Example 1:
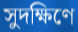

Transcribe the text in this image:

সুদক্ষিণে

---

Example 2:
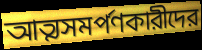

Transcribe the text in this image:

আত্মসমর্পণকারীদের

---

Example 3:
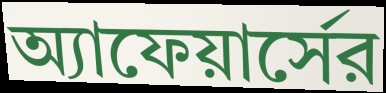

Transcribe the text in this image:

অ্যাফেয়ার্সের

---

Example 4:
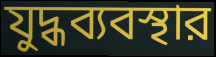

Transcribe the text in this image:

যুদ্ধব্যবস্থার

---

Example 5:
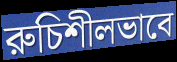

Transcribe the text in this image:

রুচিশীলভাবে